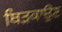
ਥਿੜਕਾਉਣ